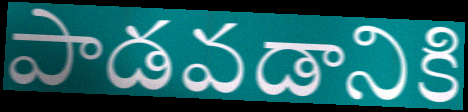
పాడవడానికి